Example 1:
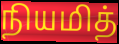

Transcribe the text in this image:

நியமித்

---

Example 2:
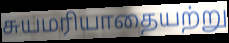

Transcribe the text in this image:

சுயமரியாதையற்று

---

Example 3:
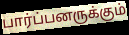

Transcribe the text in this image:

பார்ப்பனருக்கும்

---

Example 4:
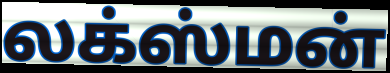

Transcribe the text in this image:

லக்ஸ்மன்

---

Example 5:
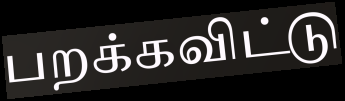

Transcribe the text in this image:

பறக்கவிட்டு